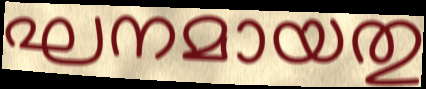
ഘനമായതു